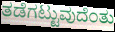
ತಡೆಗಟ್ಟುವುದೆಂತು